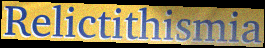
Relictithismia